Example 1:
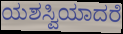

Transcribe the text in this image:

ಯಶಸ್ವಿಯಾದರೆ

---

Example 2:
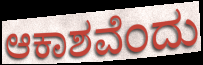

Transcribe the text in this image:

ಆಕಾಶವೆಂದು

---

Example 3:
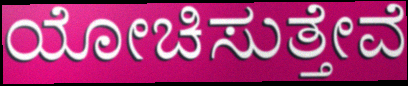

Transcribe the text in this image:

ಯೋಚಿಸುತ್ತೇವೆ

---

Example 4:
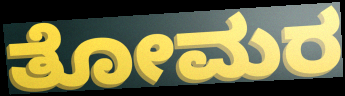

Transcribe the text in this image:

ತೋಮರ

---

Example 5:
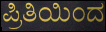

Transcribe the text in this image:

ಪ್ರಿತಿಯಿಂದ